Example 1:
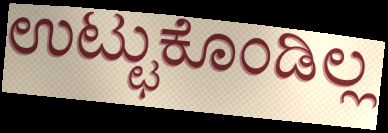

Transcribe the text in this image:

ಉಟ್ಟುಕೊಂಡಿಲ್ಲ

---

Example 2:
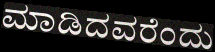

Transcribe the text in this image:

ಮಾಡಿದವರೆಂದು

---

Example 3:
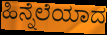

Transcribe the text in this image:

ಹಿನ್ನೆಲೆಯಾದ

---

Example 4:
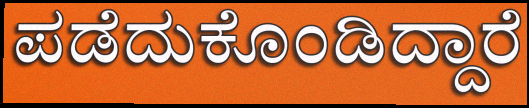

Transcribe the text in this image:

ಪಡೆದುಕೊಂಡಿದ್ದಾರೆ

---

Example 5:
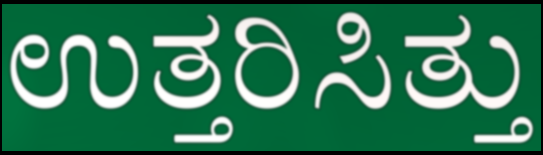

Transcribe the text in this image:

ಉತ್ತರಿಸಿತ್ತು